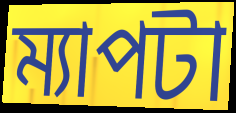
ম্যাপটা